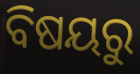
ବିଷୟରୁ